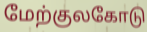
மேற்குலகோடு